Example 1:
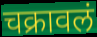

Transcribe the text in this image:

चक्रावलं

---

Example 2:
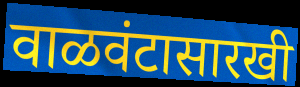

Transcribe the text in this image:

वाळवंटासारखी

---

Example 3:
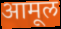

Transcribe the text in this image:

आमूल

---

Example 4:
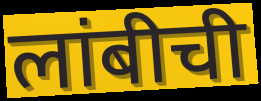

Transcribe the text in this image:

लांबीची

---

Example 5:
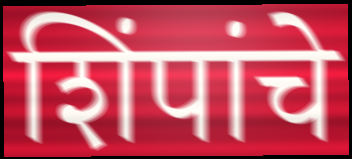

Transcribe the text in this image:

शिंपांचे